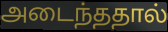
அடைந்ததால்